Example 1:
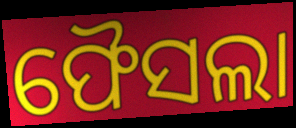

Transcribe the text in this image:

ଫୈସଲା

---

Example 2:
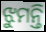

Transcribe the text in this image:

ଝୁମନ୍ତି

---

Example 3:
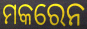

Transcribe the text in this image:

ମକରେନ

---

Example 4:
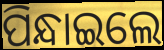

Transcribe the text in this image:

ପିନ୍ଧାଇଲେ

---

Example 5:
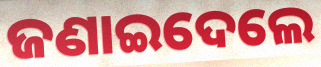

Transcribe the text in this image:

ଜଣାଇଦେଲେ